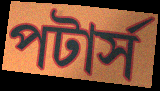
পটার্স